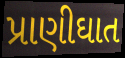
પ્રાણીઘાત